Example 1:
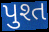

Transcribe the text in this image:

પુશ્ત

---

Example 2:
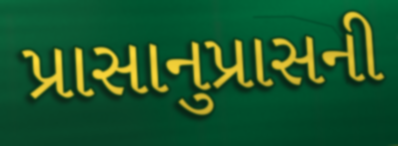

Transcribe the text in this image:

પ્રાસાનુપ્રાસની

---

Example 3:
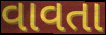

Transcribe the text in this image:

વાવતા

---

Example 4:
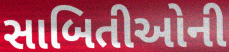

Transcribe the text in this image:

સાબિતીઓની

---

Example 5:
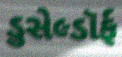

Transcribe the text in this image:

ડુસેલ્ડૉર્ફ